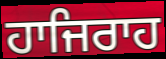
ਹਾਜਿਰਾਹ